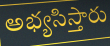
అభ్యసిస్తారు